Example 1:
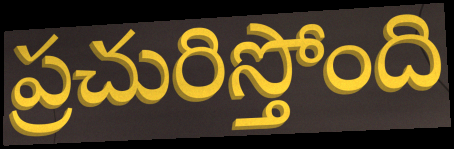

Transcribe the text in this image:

ప్రచురిస్తోంది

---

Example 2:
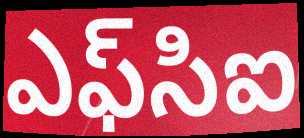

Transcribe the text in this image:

ఎఫ్‌సిఐ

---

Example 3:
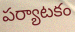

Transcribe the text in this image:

పర్యాటకం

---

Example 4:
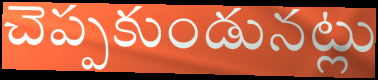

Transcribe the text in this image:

చెప్పకుండునట్లు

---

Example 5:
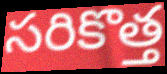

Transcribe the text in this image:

సరికొత్త